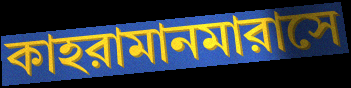
কাহরামানমারাসে